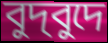
বুদ্‌বুদে